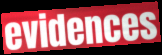
evidences